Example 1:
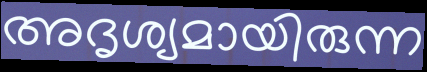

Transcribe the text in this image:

അദൃശ്യമായിരുന്ന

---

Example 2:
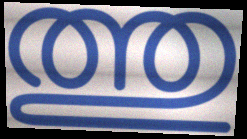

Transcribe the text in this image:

ത്തു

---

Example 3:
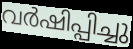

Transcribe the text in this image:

വർഷിപ്പിച്ചു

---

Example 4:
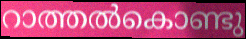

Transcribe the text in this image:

റാത്തൽകൊണ്ടു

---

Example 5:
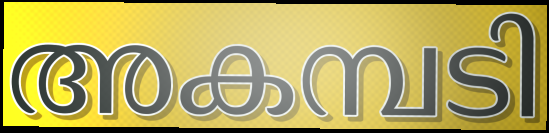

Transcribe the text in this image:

അകമ്പടി